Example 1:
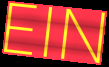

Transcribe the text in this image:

EIN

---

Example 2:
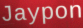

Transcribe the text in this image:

Jaypon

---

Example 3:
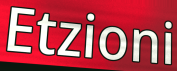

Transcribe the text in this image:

Etzioni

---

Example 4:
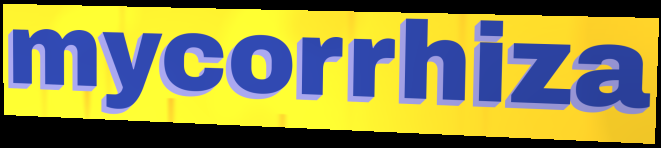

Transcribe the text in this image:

mycorrhiza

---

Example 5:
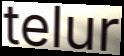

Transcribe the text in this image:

telur